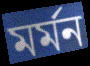
মর্মন